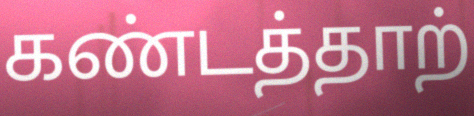
கண்டத்தாற்